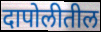
दापोलीतील